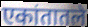
एकांतातले